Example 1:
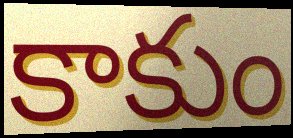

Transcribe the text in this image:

కాకుం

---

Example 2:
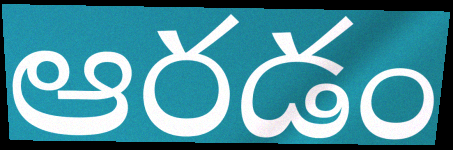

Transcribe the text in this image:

ఆరడం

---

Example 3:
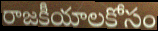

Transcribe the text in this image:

రాజకీయాలకోసం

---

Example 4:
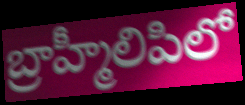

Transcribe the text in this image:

బ్రాహ్మీలిపిలో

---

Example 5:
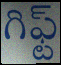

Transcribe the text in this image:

గిఫ్ట్